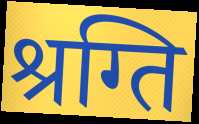
श्रग्ति